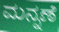
ಮನ್ನಣೆ